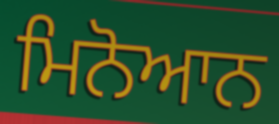
ਮਿਨੋਆਨ